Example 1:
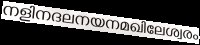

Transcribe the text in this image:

നളിനദലനയനമഖിലേശ്വരം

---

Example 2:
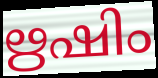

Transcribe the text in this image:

ഋഷിം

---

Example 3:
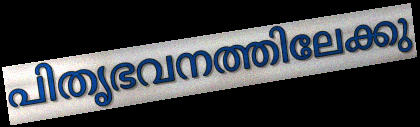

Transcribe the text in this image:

പിതൃഭവനത്തിലേക്കു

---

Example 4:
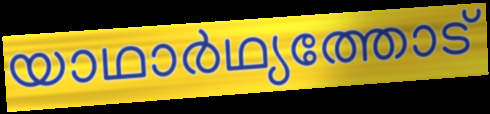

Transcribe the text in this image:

യാഥാർഥ്യത്തോട്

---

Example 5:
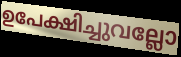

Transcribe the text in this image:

ഉപേക്ഷിച്ചുവല്ലോ